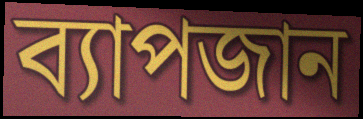
ব্যাপজান